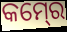
କମ୍‍ରେ